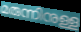
മരുന്നിനുള്ള